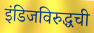
इंडिजविरुद्धची